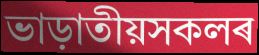
ভাড়াতীয়সকলৰ